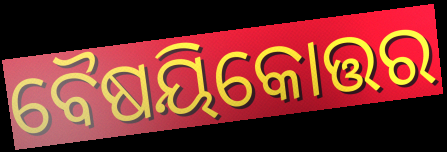
ବୈଷୟିକୋତ୍ତର